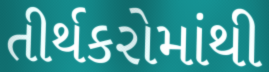
તીર્થકરોમાંથી